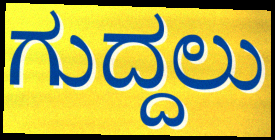
ಗುದ್ದಲು